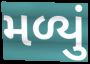
મળ્યું